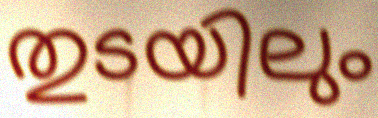
തുടയിലും